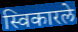
स्विकारले